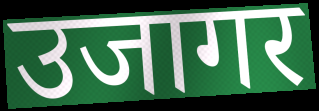
उजागर